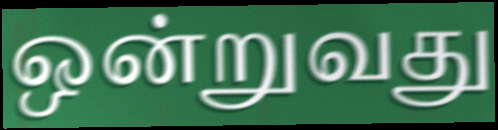
ஒன்றுவது